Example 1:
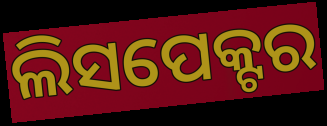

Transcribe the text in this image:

ଲିସପେକ୍ଟର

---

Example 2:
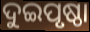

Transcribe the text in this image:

ଦୁଇପୃଷ୍ଠା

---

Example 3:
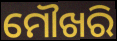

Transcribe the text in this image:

ମୌଖରି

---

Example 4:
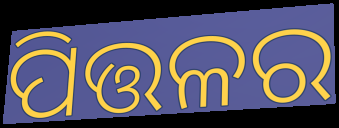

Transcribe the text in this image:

ପିତ୍ତଳର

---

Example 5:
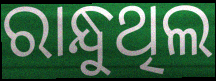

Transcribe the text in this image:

ରାନ୍ଧୁଥିଲ